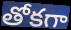
తోకగా